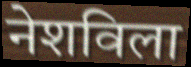
नेशविला